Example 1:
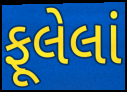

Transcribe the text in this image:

ફૂલેલાં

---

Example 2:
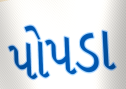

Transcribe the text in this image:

પોપડા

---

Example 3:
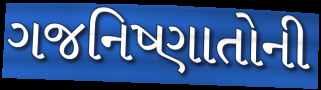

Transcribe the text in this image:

ગજનિષ્ણાતોની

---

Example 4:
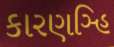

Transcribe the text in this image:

કારણઞ્હિ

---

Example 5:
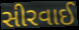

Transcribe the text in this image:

સીરવાઈ